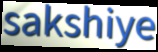
sakshiye